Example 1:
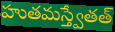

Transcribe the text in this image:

హుతమస్త్వేతత్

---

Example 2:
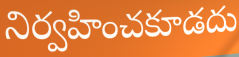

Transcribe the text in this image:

నిర్వహించకూడదు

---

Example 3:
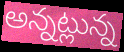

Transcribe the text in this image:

అన్నట్లున్న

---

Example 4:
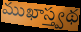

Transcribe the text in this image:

ముఖాస్త్వథ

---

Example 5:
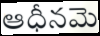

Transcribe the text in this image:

ఆధీనమె